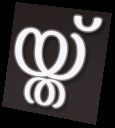
യ്ത്